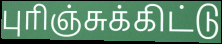
புரிஞ்சுக்கிட்டு